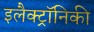
इलैक्ट्रॉनिकी